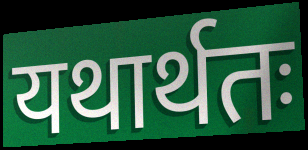
यथार्थतः